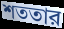
শততার